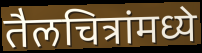
तैलचित्रांमध्ये